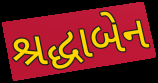
શ્રદ્ધાબેન